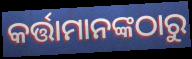
କର୍ତ୍ତାମାନଙ୍କଠାରୁ